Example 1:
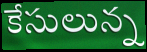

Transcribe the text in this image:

కేసులున్న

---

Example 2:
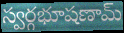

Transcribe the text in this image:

స్వర్గభూషణామ్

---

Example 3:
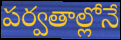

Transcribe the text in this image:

పర్వతాల్లోనే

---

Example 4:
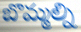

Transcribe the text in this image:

బొమ్మల్ని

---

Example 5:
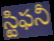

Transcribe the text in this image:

స్టిఫనీ